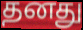
தனது